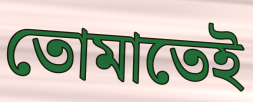
তোমাতেই